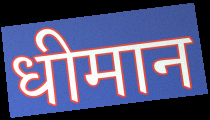
धीमान